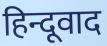
हिन्दूवाद